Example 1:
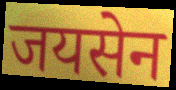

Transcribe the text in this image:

जयसेन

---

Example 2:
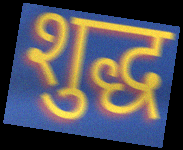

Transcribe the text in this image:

शुद्ध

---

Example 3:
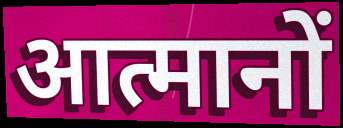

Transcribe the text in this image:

आत्मानों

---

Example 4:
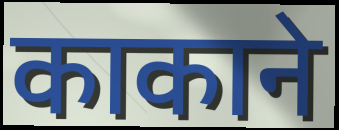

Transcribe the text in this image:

काकाने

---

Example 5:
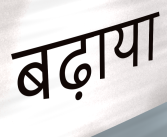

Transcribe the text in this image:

बढ़ाया